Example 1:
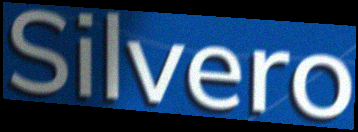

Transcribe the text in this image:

Silvero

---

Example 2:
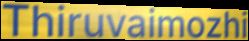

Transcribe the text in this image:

Thiruvaimozhi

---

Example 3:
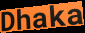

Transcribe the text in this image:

Dhaka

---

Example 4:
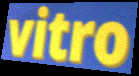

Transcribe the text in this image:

vitro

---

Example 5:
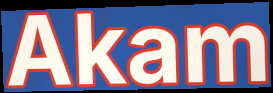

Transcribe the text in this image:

Akam